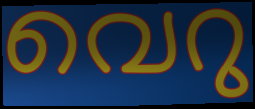
വെറു